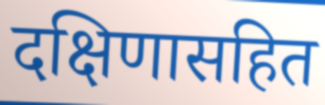
दक्षिणासहित